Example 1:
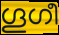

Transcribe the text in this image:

ഗൂഗീ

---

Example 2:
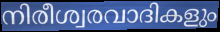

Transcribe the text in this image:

നിരീശ്വരവാദികളും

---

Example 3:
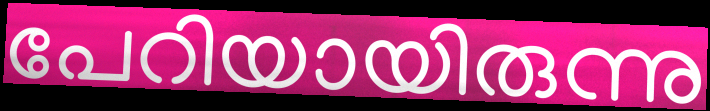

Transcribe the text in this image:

പേറിയായിരുന്നു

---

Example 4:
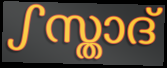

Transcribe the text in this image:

ഽസ്താദ്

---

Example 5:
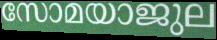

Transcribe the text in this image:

സോമയാജുല